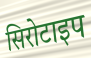
सिरोटाइप